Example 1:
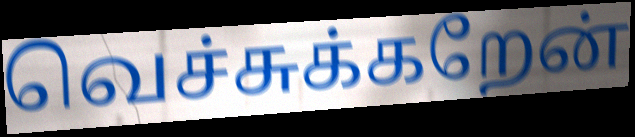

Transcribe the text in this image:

வெச்சுக்கறேன்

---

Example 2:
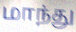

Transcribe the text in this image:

மாந்து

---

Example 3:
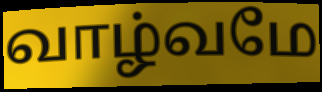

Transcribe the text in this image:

வாழ்வமே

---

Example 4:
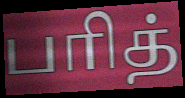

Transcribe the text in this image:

பரித்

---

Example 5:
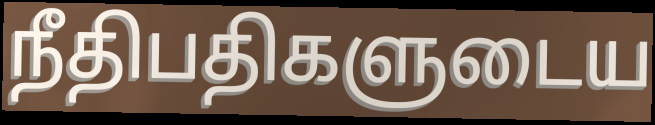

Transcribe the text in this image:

நீதிபதிகளுடைய